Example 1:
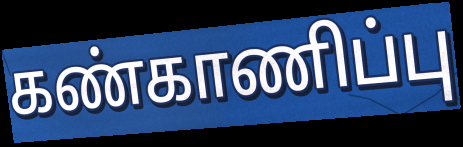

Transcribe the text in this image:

கண்காணிப்பு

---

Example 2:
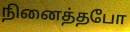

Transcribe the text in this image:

நினைத்தபோ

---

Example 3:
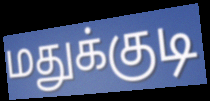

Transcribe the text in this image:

மதுக்குடி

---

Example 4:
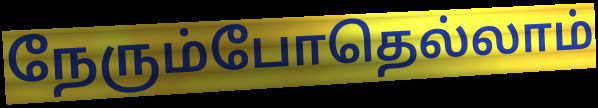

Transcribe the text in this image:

நேரும்போதெல்லாம்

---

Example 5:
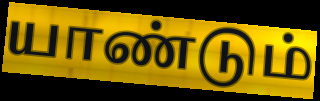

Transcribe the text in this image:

யாண்டும்